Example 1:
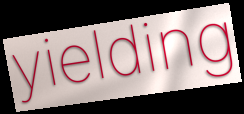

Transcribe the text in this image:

yielding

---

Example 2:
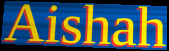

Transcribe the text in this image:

Aishah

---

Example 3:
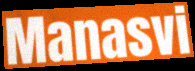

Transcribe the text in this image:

Manasvi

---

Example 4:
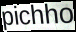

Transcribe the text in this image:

pichho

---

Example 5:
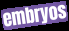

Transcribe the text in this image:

embryos